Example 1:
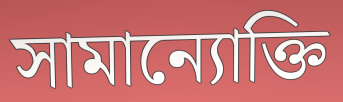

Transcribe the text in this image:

সামান্যোক্তি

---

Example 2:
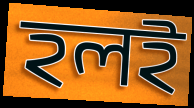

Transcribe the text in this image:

হলই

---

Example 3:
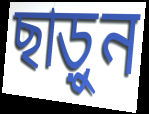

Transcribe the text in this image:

ছাড়ুন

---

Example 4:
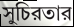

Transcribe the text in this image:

সুচিরতার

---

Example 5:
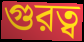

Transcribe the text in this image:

গুরত্ব